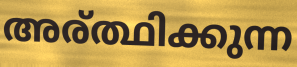
അര്ത്ഥിക്കുന്ന